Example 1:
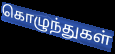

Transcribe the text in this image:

கொழுந்துகள்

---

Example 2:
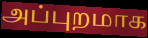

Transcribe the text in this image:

அப்புறமாக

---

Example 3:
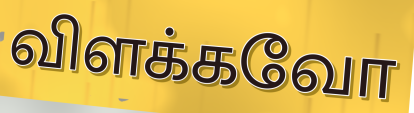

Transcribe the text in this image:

விளக்கவோ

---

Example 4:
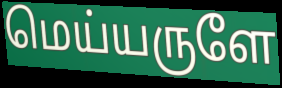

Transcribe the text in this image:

மெய்யருளே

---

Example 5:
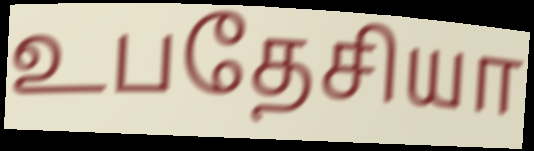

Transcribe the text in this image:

உபதேசியா